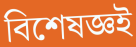
বিশেষজ্ঞই